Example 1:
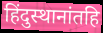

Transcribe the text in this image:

हिंदुस्थानांतहि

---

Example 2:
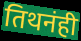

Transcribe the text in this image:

तिथनंही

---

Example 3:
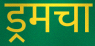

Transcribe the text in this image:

ड्रमचा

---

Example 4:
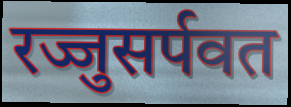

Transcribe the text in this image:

रज्जुसर्पवत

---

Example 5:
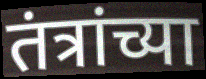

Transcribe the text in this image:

तंत्रांच्या